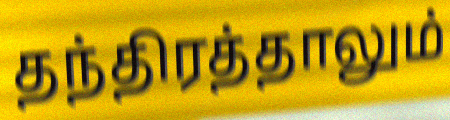
தந்திரத்தாலும்